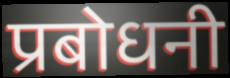
प्रबोधनी